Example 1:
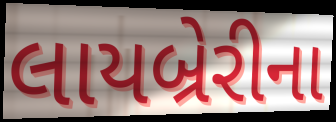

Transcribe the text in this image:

લાયબ્રેરીના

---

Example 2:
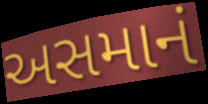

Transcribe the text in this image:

અસમાનં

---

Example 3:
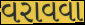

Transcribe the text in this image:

વરાવવા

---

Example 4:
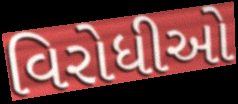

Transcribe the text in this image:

વિરોધીઓ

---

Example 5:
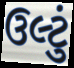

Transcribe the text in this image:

ઉલ્ટું